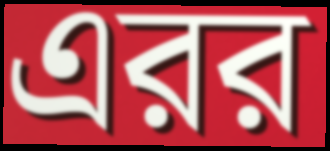
এরর